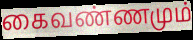
கைவண்ணமும்